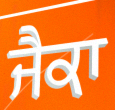
ਜੈਕਾ